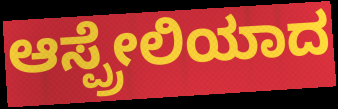
ಆಸ್ಪ್ರೇಲಿಯಾದ